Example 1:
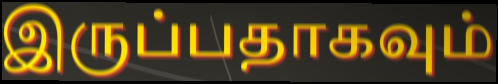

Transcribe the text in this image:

இருப்பதாகவும்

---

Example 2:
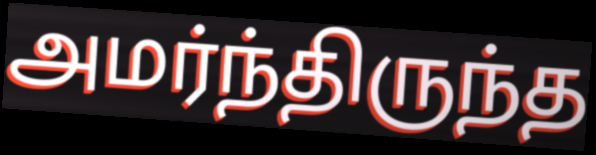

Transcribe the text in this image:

அமர்ந்திருந்த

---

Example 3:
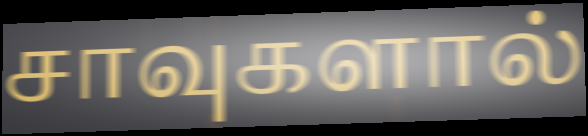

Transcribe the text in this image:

சாவுகளால்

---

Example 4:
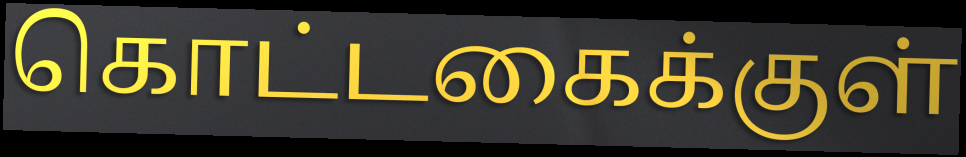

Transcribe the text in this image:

கொட்டகைக்குள்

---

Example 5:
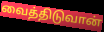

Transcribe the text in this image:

வைத்திடுவான்